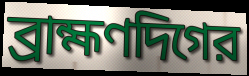
ব্রাহ্মণদিগের